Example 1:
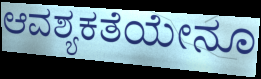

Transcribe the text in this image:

ಆವಶ್ಯಕತೆಯೇನೂ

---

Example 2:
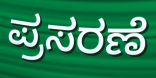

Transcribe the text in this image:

ಪ್ರಸರಣೆ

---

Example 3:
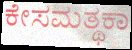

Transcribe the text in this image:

ಕೇಸಮತ್ಥಕಾ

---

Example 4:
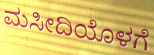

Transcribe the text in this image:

ಮಸೀದಿಯೊಳಗೆ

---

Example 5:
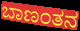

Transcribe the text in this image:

ಬಾಣಂತನ